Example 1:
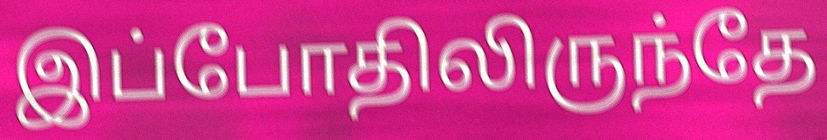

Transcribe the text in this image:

இப்போதிலிருந்தே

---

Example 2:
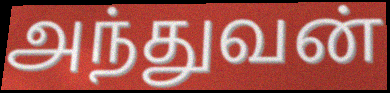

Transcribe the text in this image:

அந்துவன்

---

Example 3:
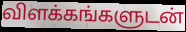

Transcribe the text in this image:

விளக்கங்களுடன்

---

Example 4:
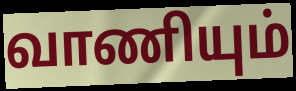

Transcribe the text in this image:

வாணியும்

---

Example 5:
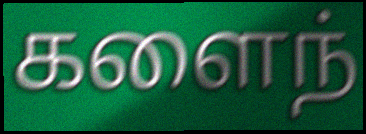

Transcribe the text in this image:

களைந்